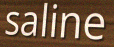
saline